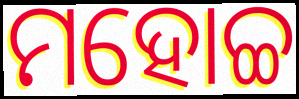
ମହୋଚ୍ଚ